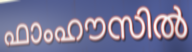
ഫാംഹൗസിൽ